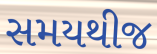
સમયથીજ